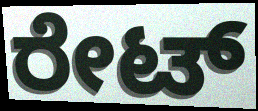
ರೇಟ್